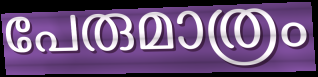
പേരുമാത്രം